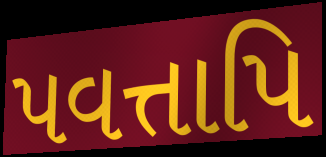
પવત્તાપિ